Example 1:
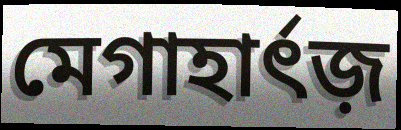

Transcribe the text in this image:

মেগাহার্ৎজ়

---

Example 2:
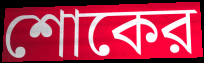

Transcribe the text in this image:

শোকের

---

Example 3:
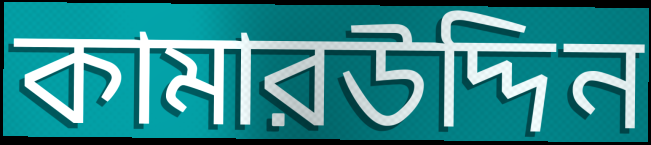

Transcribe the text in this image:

কামারউদ্দিন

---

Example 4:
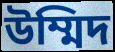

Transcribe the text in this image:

উম্মিদ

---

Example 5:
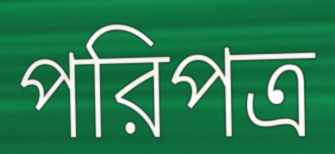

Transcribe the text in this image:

পরিপত্র